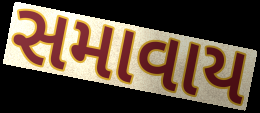
સમાવાય